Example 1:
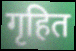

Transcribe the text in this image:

गृहित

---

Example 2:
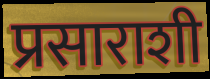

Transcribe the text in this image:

प्रसाराशी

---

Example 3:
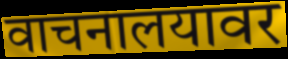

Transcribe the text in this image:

वाचनालयावर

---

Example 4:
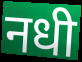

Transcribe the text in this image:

नधी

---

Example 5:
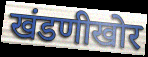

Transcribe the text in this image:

खंडणीखोर